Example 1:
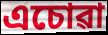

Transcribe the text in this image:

এচোৱা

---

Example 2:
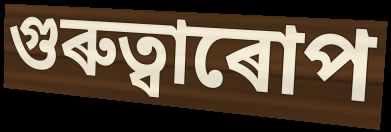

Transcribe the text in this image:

গুৰুত্বাৰোপ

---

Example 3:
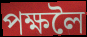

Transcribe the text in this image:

পক্ষলৈ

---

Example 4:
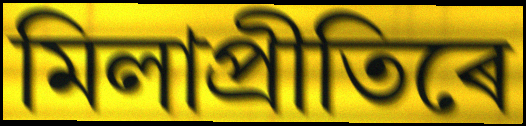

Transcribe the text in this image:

মিলাপ্ৰীতিৰে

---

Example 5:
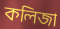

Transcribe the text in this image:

কলিজা